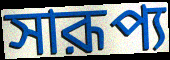
সারূপ্য